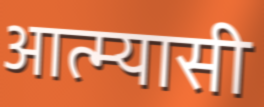
आत्म्यासी